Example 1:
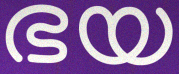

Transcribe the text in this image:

ഭയ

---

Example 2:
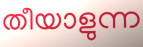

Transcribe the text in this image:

തീയാളുന്ന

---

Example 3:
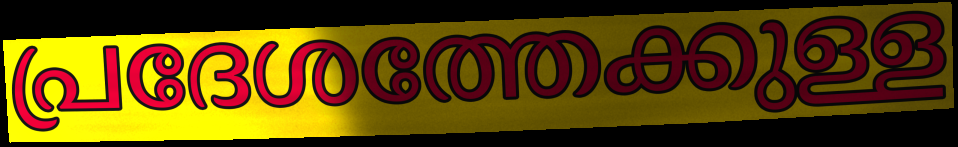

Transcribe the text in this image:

പ്രദേശത്തേക്കുള്ള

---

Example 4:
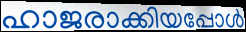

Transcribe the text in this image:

ഹാജരാക്കിയപ്പോൾ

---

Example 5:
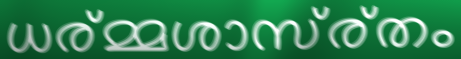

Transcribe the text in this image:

ധര്മ്മശാസ്ര്തം